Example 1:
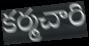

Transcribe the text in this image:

కర్మచారి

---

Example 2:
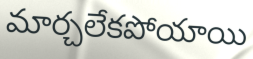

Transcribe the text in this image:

మార్చలేకపోయాయి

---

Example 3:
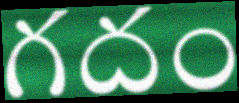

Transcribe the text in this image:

గదం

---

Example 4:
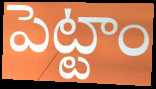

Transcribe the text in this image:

పెట్టాం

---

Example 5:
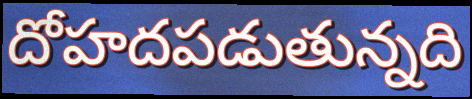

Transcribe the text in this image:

దోహదపడుతున్నది